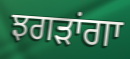
ਝਗੜਾਂਗਾ